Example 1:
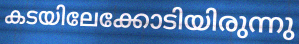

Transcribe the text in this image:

കടയിലേക്കോടിയിരുന്നു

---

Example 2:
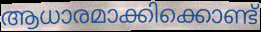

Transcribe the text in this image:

ആധാരമാക്കിക്കൊണ്ട്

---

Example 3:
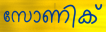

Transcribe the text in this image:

സോണിക്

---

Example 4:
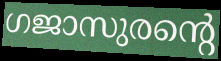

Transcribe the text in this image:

ഗജാസുരന്റെ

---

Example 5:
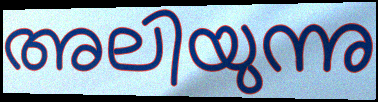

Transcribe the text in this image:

അലിയുന്നു